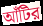
আঁটির